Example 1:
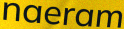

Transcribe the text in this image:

naeram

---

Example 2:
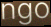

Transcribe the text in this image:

ngo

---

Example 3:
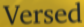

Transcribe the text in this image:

Versed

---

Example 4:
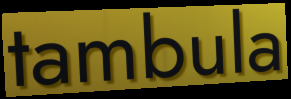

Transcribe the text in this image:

tambula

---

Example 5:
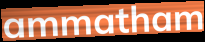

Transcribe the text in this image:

ammatham